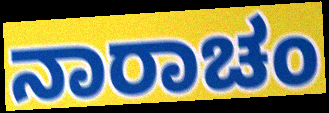
ನಾರಾಚಂ